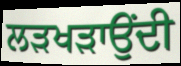
ਲੜਖੜਾਉਂਦੀ